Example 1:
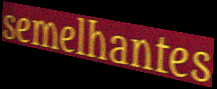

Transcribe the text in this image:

semelhantes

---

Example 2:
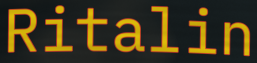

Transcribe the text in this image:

Ritalin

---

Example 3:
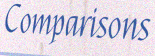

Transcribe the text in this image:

Comparisons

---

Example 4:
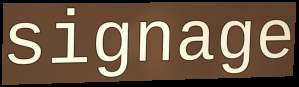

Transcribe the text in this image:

signage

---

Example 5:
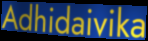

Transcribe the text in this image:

Adhidaivika